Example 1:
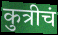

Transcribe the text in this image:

कुत्रीचं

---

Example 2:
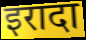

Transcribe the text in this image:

इरादा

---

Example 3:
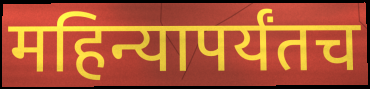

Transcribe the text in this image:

महिन्यापर्यंतच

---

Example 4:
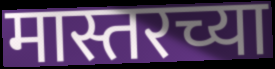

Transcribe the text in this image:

मास्तरच्या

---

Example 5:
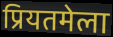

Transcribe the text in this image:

प्रियतमेला